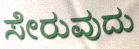
ಸೇರುವುದು